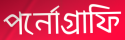
পর্নোগ্রাফি